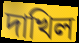
দাখিল